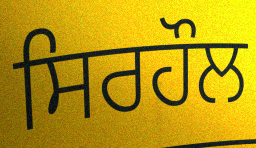
ਸਿਰਹੌਲ